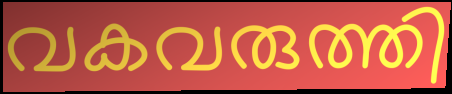
വകവരുത്തി